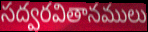
సద్వరవితానములు